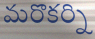
మరొకర్ని